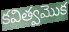
కవిత్వమొక